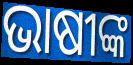
ଭାଷୀଙ୍କ